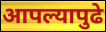
आपल्यापुढे